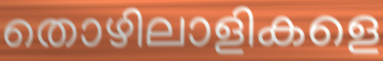
തൊഴിലാളികളെ